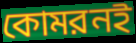
কোমরনই